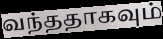
வந்ததாகவும்